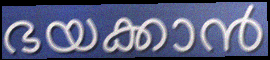
ഭയക്കാൻ